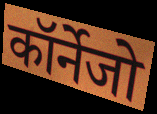
कॉर्नेजो